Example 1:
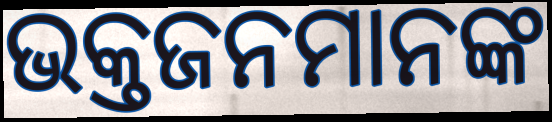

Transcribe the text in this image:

ଭକ୍ତଜନମାନଙ୍କ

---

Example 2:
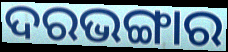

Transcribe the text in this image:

ଦରଭଙ୍ଗାର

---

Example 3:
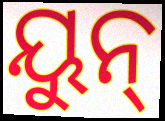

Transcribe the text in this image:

ୟୁନ୍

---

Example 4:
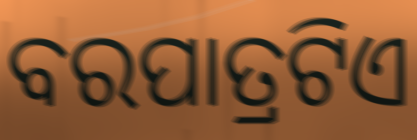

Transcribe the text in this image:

ବରପାତ୍ରଟିଏ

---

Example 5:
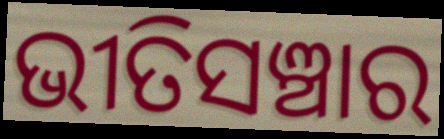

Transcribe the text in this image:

ଭୀତିସଞ୍ଚାର